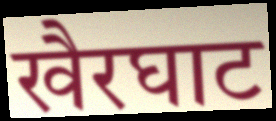
खैरघाट